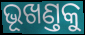
ଭୂଖଣ୍ତକୁ